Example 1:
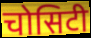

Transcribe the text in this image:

चोसिटी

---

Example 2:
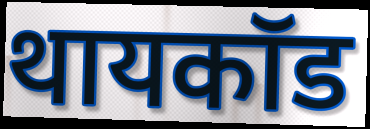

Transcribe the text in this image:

थायकॉड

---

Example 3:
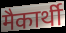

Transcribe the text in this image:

मैकार्थी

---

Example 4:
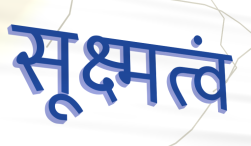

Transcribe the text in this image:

सूक्ष्मत्वं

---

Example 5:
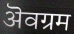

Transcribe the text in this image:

ऄवग्रम